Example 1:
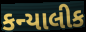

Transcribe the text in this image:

કન્યાલીક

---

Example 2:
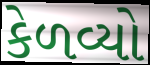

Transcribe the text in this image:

કેળવ્યો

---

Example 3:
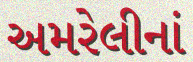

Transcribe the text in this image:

અમરેલીનાં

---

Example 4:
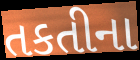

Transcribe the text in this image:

તકતીના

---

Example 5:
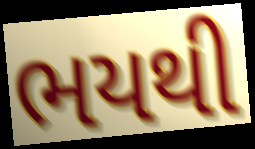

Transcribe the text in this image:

ભયથી